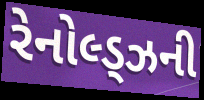
રેનોલ્ડ્ઝની